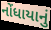
નોંધાયાનું